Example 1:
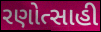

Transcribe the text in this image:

રણોત્સાહી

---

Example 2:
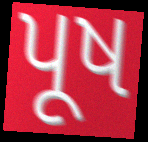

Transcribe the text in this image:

પૂષ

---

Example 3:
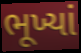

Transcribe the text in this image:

ભૂખ્યાં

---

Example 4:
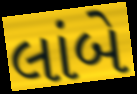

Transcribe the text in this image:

લાંબે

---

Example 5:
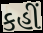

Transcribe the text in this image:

કહીં